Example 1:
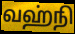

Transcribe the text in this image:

வஹ்நி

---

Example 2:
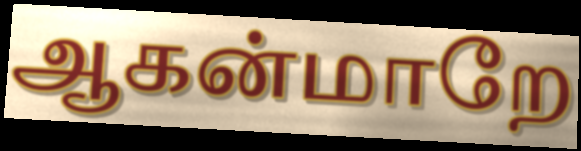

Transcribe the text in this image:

ஆகன்மாறே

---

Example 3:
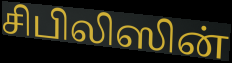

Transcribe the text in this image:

சிபிலிஸின்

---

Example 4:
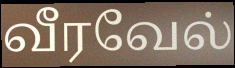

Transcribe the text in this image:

வீரவேல்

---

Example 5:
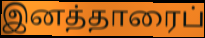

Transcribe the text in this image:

இனத்தாரைப்